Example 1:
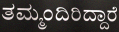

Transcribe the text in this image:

ತಮ್ಮಂದಿರಿದ್ದಾರೆ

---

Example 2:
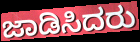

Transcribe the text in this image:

ಜಾಡಿಸಿದರು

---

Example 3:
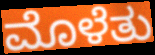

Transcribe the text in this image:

ಮೊಳೆತು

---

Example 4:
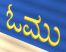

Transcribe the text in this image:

ಓಮು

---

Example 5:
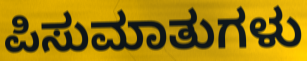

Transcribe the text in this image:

ಪಿಸುಮಾತುಗಳು